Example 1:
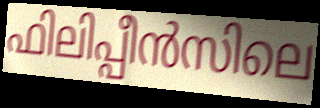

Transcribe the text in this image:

ഫിലിപ്പീൻസിലെ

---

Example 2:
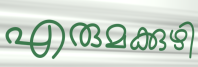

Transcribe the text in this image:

എരുമക്കുഴി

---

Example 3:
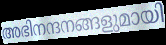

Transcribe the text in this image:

അഭിനന്ദനങ്ങളുമായി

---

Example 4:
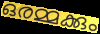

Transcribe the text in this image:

ഒരമ്മക്കും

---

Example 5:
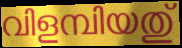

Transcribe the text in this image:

വിളമ്പിയതു്